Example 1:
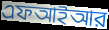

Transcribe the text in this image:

এফআইআর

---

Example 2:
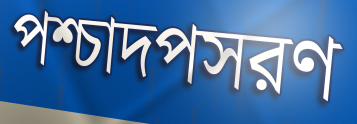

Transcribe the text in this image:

পশ্চাদপসরণ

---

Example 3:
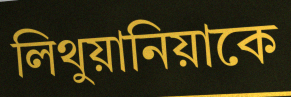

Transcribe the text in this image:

লিথুয়ানিয়াকে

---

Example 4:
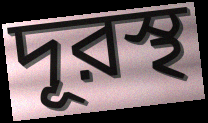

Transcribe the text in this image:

দূরস্থ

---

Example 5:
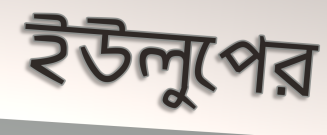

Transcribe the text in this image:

ইউলুপের